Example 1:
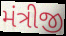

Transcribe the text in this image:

મંત્રીજી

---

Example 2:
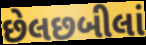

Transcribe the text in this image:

છેલછબીલાં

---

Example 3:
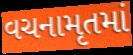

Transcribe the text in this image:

વચનામૃતમાં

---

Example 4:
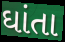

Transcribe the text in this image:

ઘાંતા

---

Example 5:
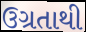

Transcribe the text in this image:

ઉગ્રતાથી